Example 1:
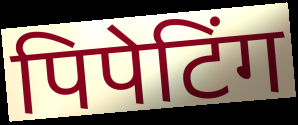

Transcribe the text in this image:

पिपेटिंग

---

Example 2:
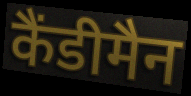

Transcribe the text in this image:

कैंडीमैन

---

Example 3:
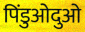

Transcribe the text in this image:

पिंडुओदुओ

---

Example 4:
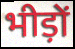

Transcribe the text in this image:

भीड़ों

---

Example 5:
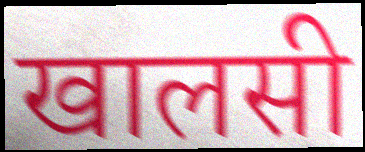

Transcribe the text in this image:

खालसी